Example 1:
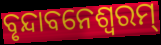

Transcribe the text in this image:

ବୃନ୍ଦାବନେଶ୍ୱରମ୍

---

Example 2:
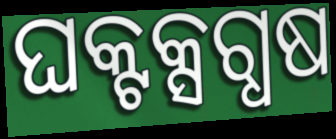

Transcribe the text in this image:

ଘକ୍ଟକ୍ସଗ୍ଧଷ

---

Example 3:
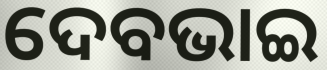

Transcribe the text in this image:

ଦେବଭାଇ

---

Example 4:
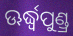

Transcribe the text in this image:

ଊର୍ଦ୍ଧ୍ୱପୁଣ୍ଡ୍ର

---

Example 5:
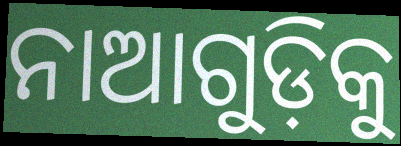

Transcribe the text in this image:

ନାଆଗୁଡ଼ିକୁ